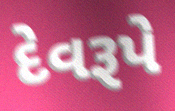
દેવરૂપે